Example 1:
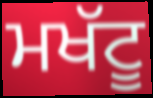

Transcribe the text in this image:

ਮਖੱਟੂ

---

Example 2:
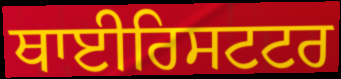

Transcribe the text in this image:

ਥਾਈਰਿਸਟਟਰ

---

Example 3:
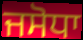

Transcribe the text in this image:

ਜਸੋਧਾ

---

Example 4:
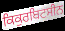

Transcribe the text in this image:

ਕਿਕੁਰਬਿਟਸੀਨ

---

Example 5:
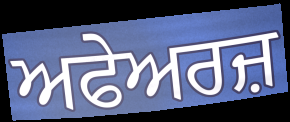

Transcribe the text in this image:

ਅਫੇਅਰਜ਼